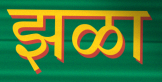
झळा